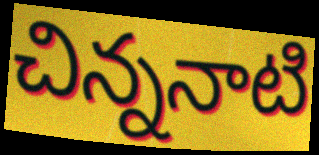
చిన్ననాటి